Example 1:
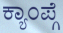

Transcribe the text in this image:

ಕ್ಯಾಂಪ್ಗೆ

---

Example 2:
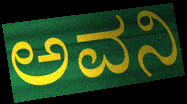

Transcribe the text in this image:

ಅವನಿ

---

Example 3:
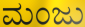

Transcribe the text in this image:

ಮಂಜು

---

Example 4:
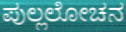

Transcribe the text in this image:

ಪುಲ್ಲಲೋಚನ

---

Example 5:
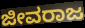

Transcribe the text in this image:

ಜೀವರಾಜ